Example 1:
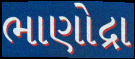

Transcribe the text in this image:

ભાણોદ્રા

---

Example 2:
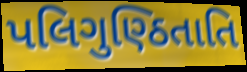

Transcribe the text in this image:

પલિગુણ્ઠિતાતિ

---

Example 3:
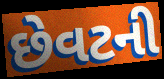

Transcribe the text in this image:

છેવટની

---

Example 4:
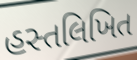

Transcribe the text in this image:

હસ્તલિખિત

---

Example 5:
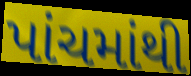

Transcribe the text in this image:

પાંચમાંથી